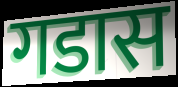
गडास